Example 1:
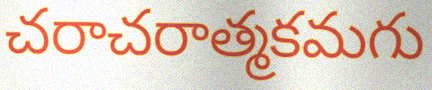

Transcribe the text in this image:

చరాచరాత్మకమగు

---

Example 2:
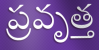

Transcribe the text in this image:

ప్రవృత్త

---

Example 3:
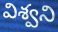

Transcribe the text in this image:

విశ్వని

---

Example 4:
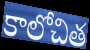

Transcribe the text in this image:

కాలోచిత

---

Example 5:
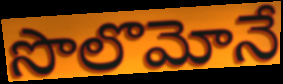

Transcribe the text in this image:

సొలొమోనే